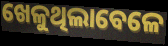
ଖେଳୁଥିଲାବେଳେ